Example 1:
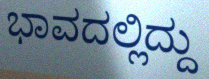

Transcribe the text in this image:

ಭಾವದಲ್ಲಿದ್ದು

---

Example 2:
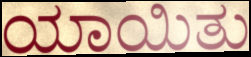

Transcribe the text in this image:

ಯಾಯಿತು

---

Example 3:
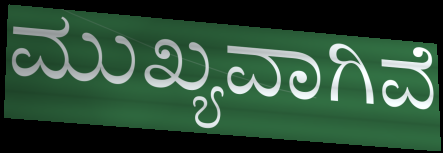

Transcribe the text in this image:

ಮುಖ್ಯವಾಗಿವೆ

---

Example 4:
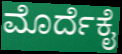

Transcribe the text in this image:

ಮೊರ್ದೆಕೈ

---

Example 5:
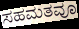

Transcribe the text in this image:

ಸಹಮತವೂ